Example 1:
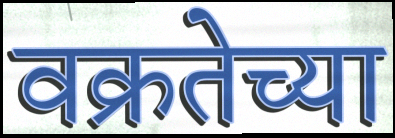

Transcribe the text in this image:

वक्रतेच्या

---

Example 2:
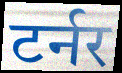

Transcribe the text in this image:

टर्नर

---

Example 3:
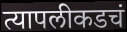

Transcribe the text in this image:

त्यापलीकडचं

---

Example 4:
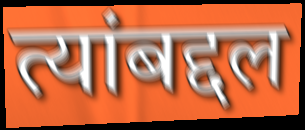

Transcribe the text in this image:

त्यांबद्दल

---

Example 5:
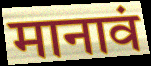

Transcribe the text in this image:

मानावं